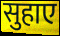
सुहाए